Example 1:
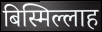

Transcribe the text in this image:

बिस्मिल्लाह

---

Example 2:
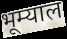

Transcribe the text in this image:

भूम्याल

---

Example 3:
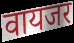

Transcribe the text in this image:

वायजर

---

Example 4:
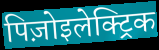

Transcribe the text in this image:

पिज़ोइलेक्ट्रिक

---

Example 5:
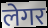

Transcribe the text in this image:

लेगर